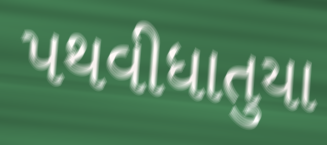
પથવીધાતુયા